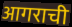
आगराची